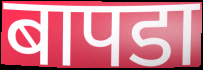
बापडा